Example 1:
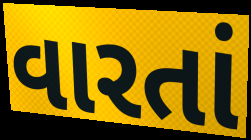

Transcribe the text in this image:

વારતાં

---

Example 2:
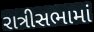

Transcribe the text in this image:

રાત્રીસભામાં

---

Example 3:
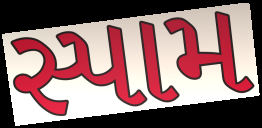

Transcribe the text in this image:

સ્પામ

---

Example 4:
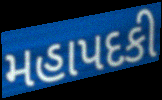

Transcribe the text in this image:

મહાપદકી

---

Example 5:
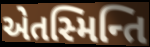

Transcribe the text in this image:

એતસ્મિન્તિ